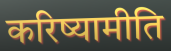
करिष्यामीति